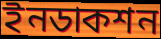
ইনডাকশন